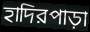
হাদিরপাড়া